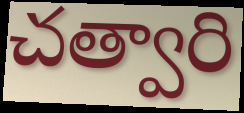
చత్వారి